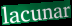
lacunar